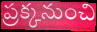
ప్రక్కనుంచి